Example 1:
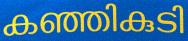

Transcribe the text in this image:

കഞ്ഞികുടി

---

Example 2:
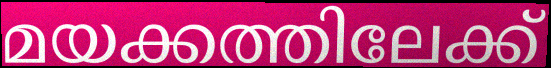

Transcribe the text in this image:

മയക്കത്തിലേക്ക്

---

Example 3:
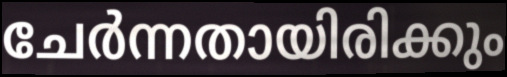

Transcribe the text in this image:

ചേർന്നതായിരിക്കും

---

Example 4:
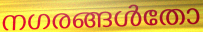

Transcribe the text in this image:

നഗരങ്ങൾതോ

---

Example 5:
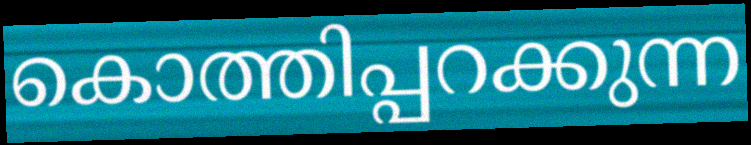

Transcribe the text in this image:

കൊത്തിപ്പറക്കുന്ന